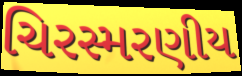
ચિરસ્મરણીય